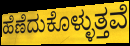
ಹೆಣೆದುಕೊಳ್ಳುತ್ತವೆ